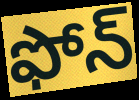
ఫోన్